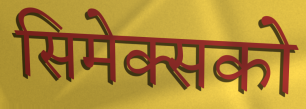
सिमेक्सको